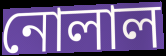
নোলাল